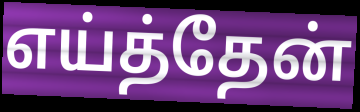
எய்த்தேன்